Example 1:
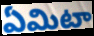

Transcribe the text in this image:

ఏమిటా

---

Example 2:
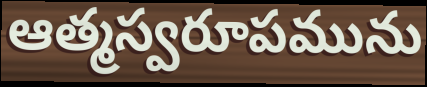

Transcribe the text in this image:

ఆత్మస్వరూపమును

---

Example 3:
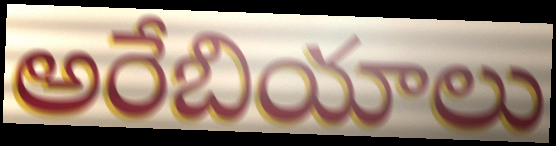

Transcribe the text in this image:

అరేబియాలు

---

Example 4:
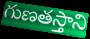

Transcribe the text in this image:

గుణతస్తాని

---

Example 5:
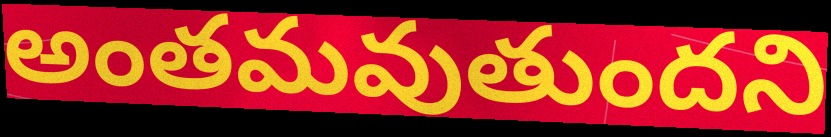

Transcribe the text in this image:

అంతమవుతుందని